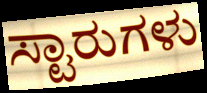
ಸ್ಟಾರುಗಳು